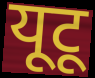
यूटू